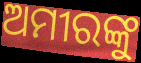
ଅମୀରଙ୍କୁ